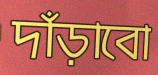
দাঁড়াবো